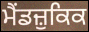
ਮੈਂਡਜ਼ੁਕਿਕ